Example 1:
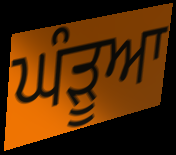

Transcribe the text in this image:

ਘੰੜੂਆ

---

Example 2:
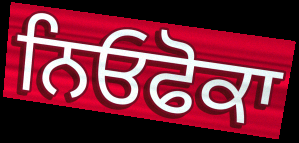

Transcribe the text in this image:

ਨਿਓਫੋਕਾ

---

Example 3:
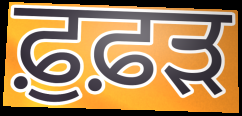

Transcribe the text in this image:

ਫ਼ੁਫ਼ੜ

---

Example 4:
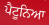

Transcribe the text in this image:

ਪੈਟੂਨਿਆ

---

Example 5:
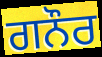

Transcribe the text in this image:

ਗਨੌਰ